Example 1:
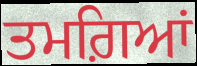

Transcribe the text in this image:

ਤਮਗ਼ਿਆਂ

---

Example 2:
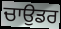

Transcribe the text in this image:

ਚਾਉਡਰ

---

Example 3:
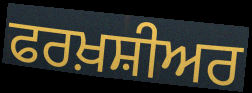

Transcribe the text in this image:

ਫਰਖ਼ਸ਼ੀਅਰ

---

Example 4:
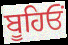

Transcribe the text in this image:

ਬੂਹਿਓਂ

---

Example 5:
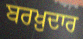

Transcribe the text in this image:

ਬਰਖ਼ੁਦਾਰ